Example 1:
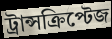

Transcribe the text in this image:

ট্রান্সক্রিপ্টেজ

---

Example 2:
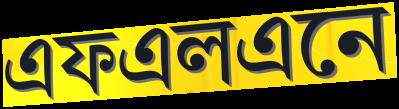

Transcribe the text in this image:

এফএলএনে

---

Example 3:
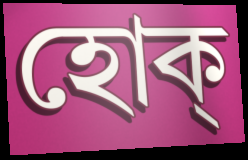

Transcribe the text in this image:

হোক্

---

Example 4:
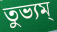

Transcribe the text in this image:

তুভ্যম্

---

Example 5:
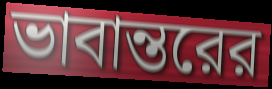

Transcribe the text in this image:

ভাবান্তরের